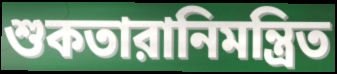
শুকতারানিমন্ত্রিত